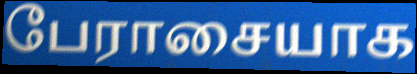
பேராசையாக